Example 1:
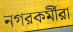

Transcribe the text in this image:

নগরকর্মীরা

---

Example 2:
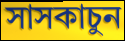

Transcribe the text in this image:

সাসকাচুন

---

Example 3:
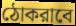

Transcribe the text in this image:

ঠোকরাবে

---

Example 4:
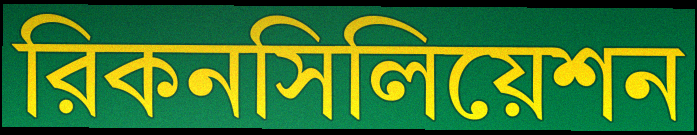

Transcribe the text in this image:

রিকনসিলিয়েশন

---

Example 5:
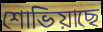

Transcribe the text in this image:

শোভিয়াছে